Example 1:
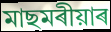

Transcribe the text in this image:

মাছমৰীয়াৰ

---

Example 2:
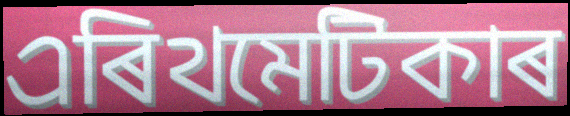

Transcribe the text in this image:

এৰিথমেটিকাৰ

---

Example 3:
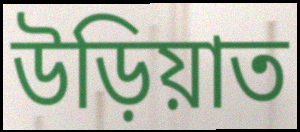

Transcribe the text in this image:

উড়িয়াত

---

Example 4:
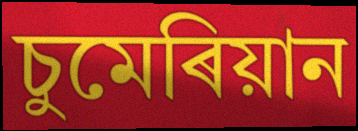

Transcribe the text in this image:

চুমেৰিয়ান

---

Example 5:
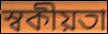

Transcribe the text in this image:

স্বকীয়তা